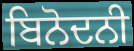
ਬਿਨੋਦਨੀ